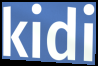
kidi